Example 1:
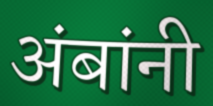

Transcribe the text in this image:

अंबांनी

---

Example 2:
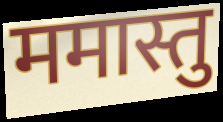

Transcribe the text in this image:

ममास्तु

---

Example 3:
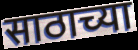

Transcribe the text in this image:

साठाच्या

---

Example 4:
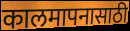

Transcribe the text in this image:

कालमापनासाठी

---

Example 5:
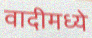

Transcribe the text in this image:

वादीमध्ये